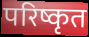
परिष्कृत